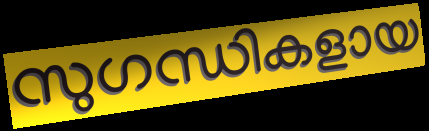
സുഗന്ധികളായ